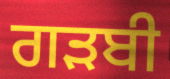
ਗੜਬੀ